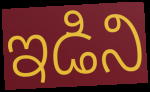
ఇడిని